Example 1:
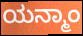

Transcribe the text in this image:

ಯನ್ಮಾಂ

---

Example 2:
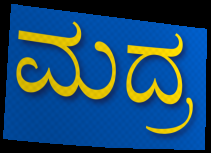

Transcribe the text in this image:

ಮದ್ರ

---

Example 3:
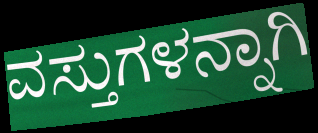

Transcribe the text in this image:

ವಸ್ತುಗಳನ್ನಾಗಿ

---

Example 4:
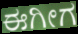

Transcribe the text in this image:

ಈಗೀಗ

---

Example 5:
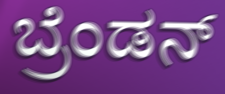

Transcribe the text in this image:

ಬ್ರೆಂಡನ್